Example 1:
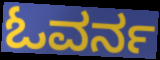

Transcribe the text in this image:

ಓವರ್ನ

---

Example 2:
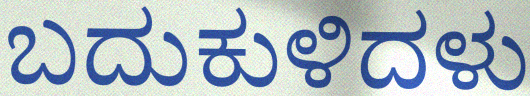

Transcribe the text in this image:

ಬದುಕುಳಿದಳು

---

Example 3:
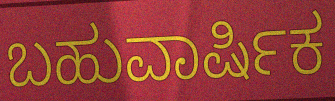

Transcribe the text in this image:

ಬಹುವಾರ್ಷಿಕ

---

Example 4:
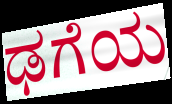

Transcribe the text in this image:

ಢಗೆಯ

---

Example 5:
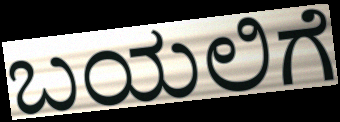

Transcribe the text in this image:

ಬಯಲಿಗೆ